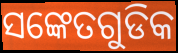
ସଙ୍କେତଗୁଡିକ